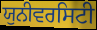
ਯੁਨੀਵਰਸਿਟੀ